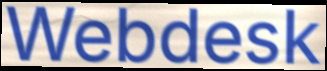
Webdesk